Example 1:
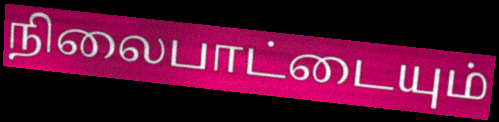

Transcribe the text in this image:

நிலைபாட்டையும்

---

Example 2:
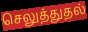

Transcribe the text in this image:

செலுத்துதல்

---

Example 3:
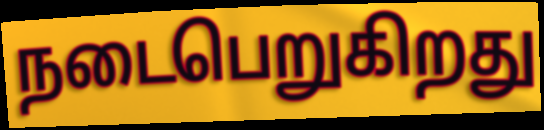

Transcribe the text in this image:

நடைபெறுகிறது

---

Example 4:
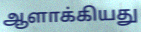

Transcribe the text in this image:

ஆளாக்கியது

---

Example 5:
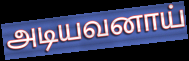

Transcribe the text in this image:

அடியவனாய்